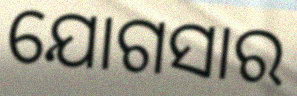
ଯୋଗସାର